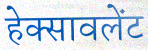
हेक्सावलेंट